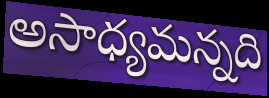
అసాధ్యమన్నది